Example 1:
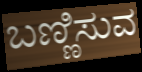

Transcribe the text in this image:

ಬಣ್ಣಿಸುವ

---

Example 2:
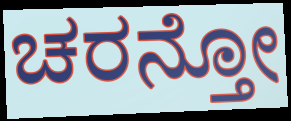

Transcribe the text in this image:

ಚರನ್ತೋ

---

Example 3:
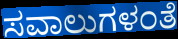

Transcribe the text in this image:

ಸವಾಲುಗಳಂತೆ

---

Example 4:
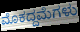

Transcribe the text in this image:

ಮೊಕದ್ದಮೆಗಳು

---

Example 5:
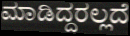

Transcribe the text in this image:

ಮಾಡಿದ್ದರಲ್ಲದೆ